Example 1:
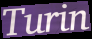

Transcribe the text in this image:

Turin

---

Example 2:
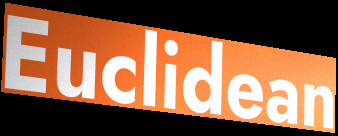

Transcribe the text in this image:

Euclidean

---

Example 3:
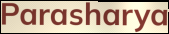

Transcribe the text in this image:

Parasharya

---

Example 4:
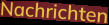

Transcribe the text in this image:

Nachrichten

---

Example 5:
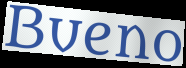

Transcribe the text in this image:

Bueno